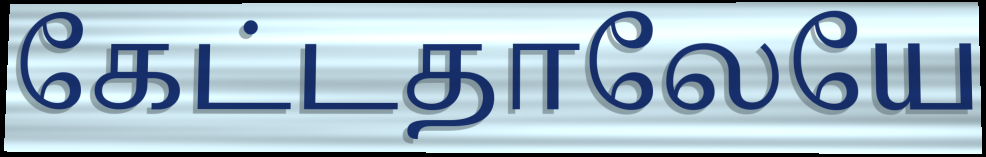
கேட்டதாலேயே